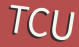
TCU